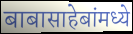
बाबासाहेबांमध्ये